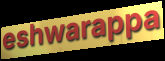
eshwarappa